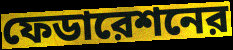
ফেডারেশনের